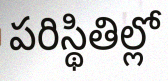
పరిస్థితిల్లో